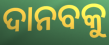
ଦାନବକୁ